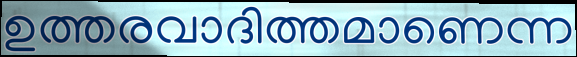
ഉത്തരവാദിത്തമാണെന്ന